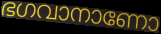
ഭഗവാനാണോ